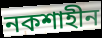
নকশাহীন